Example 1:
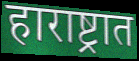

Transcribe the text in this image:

हाराष्ट्रात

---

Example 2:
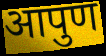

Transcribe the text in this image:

आपुण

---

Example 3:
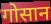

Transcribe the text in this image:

गोसान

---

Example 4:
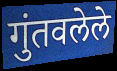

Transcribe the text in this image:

गुंतवलेले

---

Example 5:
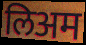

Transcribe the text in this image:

लिअम